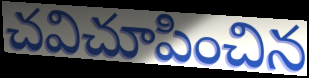
చవిచూపించిన